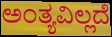
ಅಂತ್ಯವಿಲ್ಲದೆ